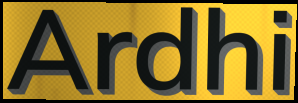
Ardhi